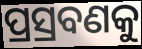
ପ୍ରସ୍ରବଣକୁ